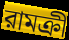
রামক্রী